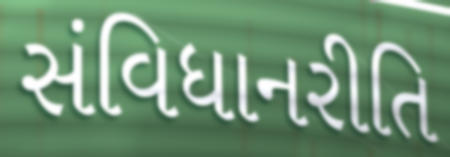
સંવિધાનરીતિ